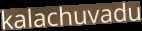
kalachuvadu